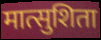
मात्सुशिता